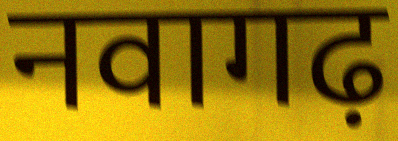
नवागढ़